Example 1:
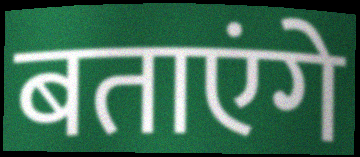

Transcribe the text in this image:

बताएंगे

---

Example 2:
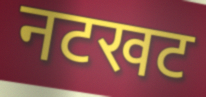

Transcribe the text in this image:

नटखट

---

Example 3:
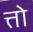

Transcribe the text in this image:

त्तो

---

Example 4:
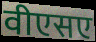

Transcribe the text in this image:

वीएसए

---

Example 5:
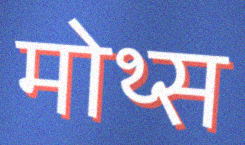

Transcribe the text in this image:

मोथ्स